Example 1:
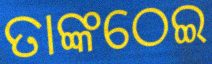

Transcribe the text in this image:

ତାଙ୍କଠେଇ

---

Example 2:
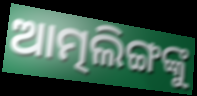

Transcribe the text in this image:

ଆତ୍ମଲିଙ୍ଗଙ୍କୁ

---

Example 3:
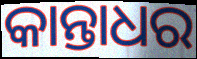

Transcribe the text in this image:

କାନ୍ତାଧର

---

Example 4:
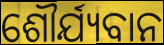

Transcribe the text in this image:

ଶୌର୍ଯ୍ୟବାନ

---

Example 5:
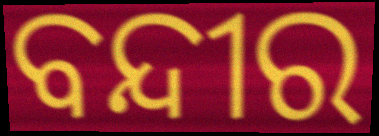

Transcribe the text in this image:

ବନ୍ଦୀର